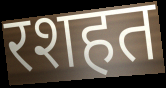
रशहत